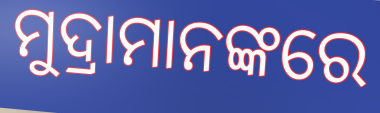
ମୁଦ୍ରାମାନଙ୍କରେ